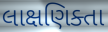
લાક્ષણિક્તા